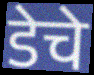
डेचे